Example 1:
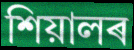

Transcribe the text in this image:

শিয়ালৰ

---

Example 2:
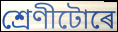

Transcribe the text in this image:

শ্ৰেণীটোৰে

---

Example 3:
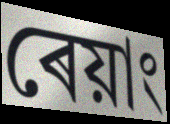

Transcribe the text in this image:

ৰেয়াং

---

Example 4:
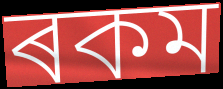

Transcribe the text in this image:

ৰকম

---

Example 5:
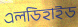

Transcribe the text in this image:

এলডিহাইড